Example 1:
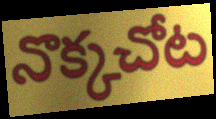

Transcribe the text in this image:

నొక్కచోట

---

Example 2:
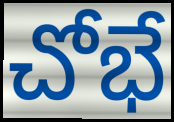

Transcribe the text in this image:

చోభే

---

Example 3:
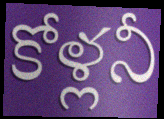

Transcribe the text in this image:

కోళ్లనీ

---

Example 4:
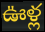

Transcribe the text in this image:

ఊళ్ల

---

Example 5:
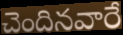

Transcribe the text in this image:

చెందినవారే